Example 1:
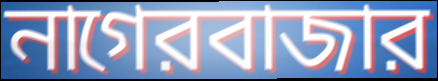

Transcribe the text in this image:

নাগেরবাজার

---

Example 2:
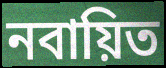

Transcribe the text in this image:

নবায়িত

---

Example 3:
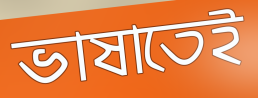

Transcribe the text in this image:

ভাষাতেই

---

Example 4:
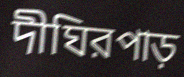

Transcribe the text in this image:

দীঘিরপাড়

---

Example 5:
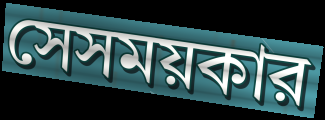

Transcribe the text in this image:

সেসময়কার